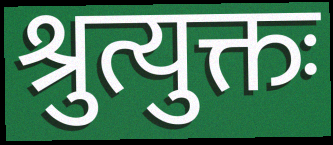
श्रुत्युक्तः